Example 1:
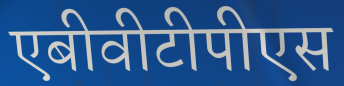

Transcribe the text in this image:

एबीवीटीपीएस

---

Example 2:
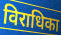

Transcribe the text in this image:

विराधिका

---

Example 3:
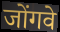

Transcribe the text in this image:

जोंगवे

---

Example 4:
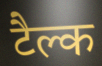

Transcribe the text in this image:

टैल्क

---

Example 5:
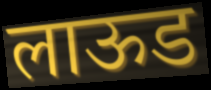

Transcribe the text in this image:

लाऊड